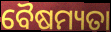
ବୈଷମ୍ୟତା